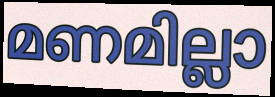
മണമില്ലാ